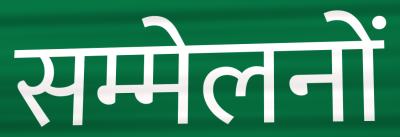
सम्‍मेलनों